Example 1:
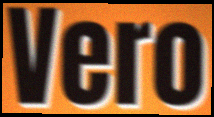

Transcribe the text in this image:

Vero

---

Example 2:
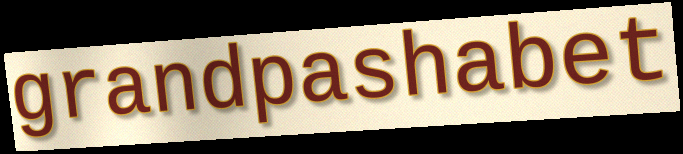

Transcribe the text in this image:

grandpashabet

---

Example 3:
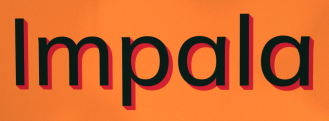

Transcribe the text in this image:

Impala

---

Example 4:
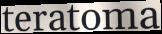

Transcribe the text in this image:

teratoma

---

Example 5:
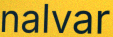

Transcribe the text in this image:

nalvar